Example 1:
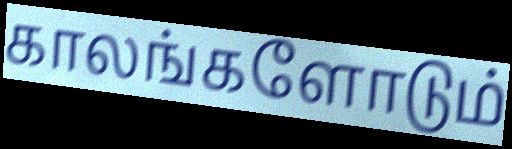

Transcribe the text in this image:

காலங்களோடும்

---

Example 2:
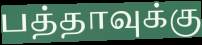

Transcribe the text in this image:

பத்தாவுக்கு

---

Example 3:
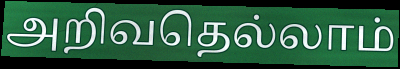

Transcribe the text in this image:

அறிவதெல்லாம்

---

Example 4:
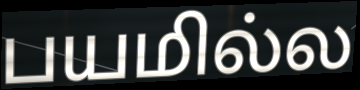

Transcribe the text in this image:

பயமில்ல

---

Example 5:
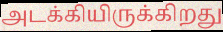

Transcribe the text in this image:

அடக்கியிருக்கிறது